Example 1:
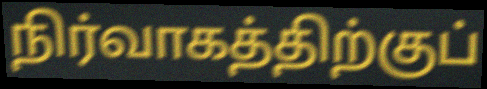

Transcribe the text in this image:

நிர்வாகத்திற்குப்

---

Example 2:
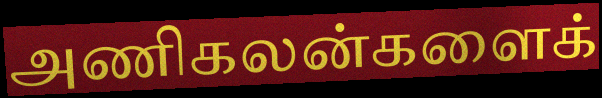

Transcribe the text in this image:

அணிகலன்களைக்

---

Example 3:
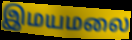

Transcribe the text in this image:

இமயமலை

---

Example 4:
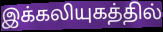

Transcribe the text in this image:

இக்கலியுகத்தில்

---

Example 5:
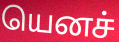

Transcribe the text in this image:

யெனச்